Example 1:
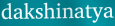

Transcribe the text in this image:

dakshinatya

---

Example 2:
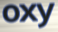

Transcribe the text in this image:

oxy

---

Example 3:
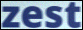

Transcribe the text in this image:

zest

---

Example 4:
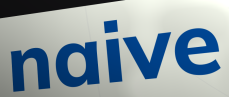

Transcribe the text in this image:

naive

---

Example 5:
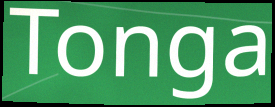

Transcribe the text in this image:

Tonga